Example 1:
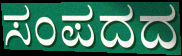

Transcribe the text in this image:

ಸಂಪದದ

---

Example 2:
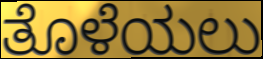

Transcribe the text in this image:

ತೊಳೆಯಲು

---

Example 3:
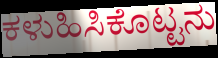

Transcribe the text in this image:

ಕಳುಹಿಸಿಕೊಟ್ಟನು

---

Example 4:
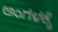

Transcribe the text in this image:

ಅಂಗಳಕ್ಕೆ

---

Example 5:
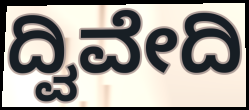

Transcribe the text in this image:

ದ್ವಿವೇದಿ